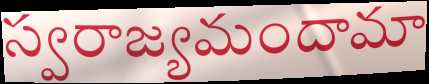
స్వరాజ్యమందామా